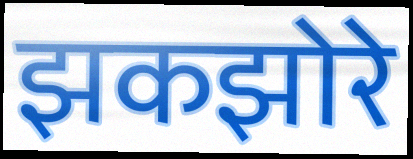
झकझोरे